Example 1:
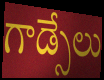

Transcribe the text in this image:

గాడ్సేలు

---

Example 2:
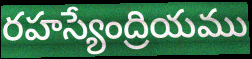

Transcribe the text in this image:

రహస్యేంద్రియము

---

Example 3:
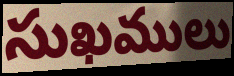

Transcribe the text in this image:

సుఖములు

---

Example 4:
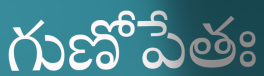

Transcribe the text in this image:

గుణోపేతః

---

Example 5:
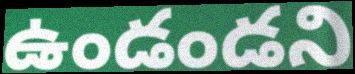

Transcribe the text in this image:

ఉండండని